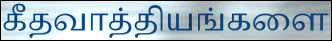
கீதவாத்தியங்களை